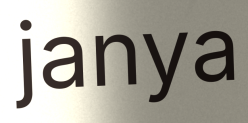
janya